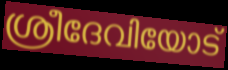
ശ്രീദേവിയോട്